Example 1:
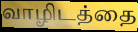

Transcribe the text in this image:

வாழிடத்தை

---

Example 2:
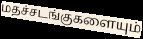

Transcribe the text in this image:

மதச்சடங்குகளையும்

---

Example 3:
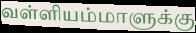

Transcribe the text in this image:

வள்ளியம்மாளுக்கு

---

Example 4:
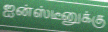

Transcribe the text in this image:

ஐன்ஸ்டீனுக்கு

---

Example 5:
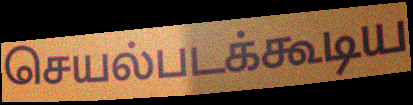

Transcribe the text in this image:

செயல்படக்கூடிய